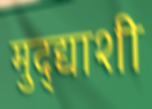
मुद्द्याशी